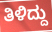
ತಿಳಿದ್ದು